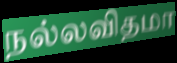
நல்லவிதமா